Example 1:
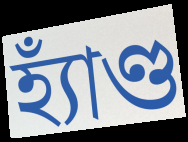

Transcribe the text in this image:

হ্যাঁণ্ড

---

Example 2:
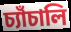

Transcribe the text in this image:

চ্যাঁচালি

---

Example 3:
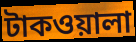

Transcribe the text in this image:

টাকওয়ালা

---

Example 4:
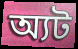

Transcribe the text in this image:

অ্যট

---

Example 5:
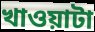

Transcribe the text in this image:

খাওয়াটা